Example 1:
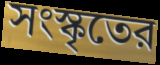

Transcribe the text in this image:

সংস্কৃতের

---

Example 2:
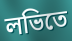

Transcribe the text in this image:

লভিতে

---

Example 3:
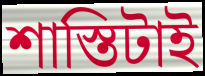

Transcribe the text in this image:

শাস্তিটাই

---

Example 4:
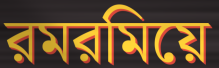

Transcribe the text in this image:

রমরমিয়ে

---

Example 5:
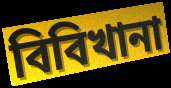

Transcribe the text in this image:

বিবিখানা